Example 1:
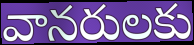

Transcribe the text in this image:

వానరులకు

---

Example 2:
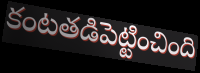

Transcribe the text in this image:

కంటతడిపెట్టించింది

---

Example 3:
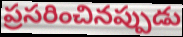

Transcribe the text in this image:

ప్రసరించినప్పుడు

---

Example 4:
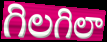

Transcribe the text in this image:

గిలగిలా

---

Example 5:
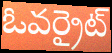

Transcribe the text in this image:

ఓవర్రైట్